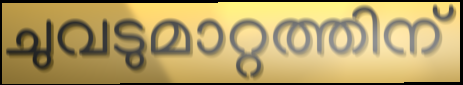
ചുവടുമാറ്റത്തിന്